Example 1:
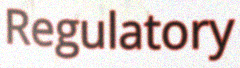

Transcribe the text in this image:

Regulatory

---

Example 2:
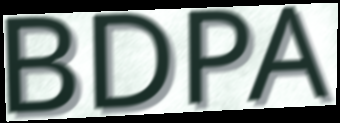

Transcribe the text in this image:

BDPA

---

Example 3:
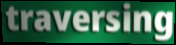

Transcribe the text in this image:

traversing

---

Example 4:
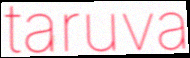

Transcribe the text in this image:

taruva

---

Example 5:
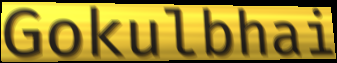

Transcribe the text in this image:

Gokulbhai